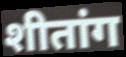
शीतांग